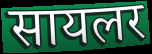
सायलर